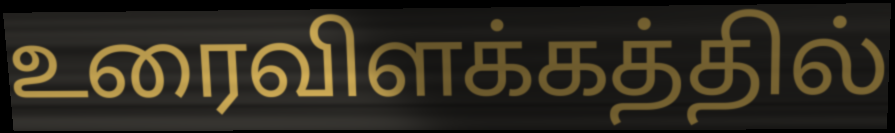
உரைவிளக்கத்தில்